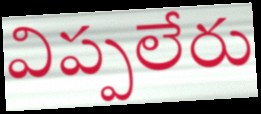
విప్పలేరు